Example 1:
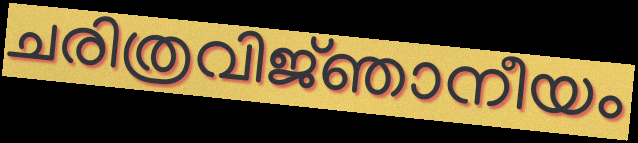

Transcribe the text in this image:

ചരിത്രവിജ്‌ഞാനീയം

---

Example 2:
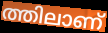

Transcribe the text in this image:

ത്തിലാണ്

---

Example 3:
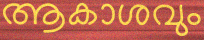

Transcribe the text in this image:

ആകാശവും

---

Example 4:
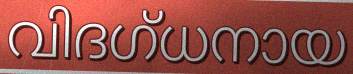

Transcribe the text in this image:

വിദഗ്ധനായ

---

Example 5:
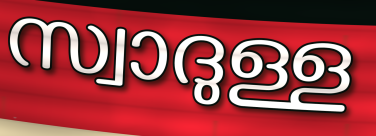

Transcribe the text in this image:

സ്വാദുള്ള